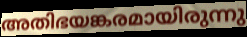
അതിഭയങ്കരമായിരുന്നു